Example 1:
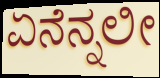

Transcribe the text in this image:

ಏನೆನ್ನಲೀ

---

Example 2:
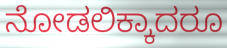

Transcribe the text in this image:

ನೋಡಲಿಕ್ಕಾದರೂ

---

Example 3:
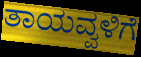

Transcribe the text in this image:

ತಾಯವ್ವಳಿಗೆ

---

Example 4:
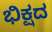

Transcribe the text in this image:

ಭಿಕ್ಷದ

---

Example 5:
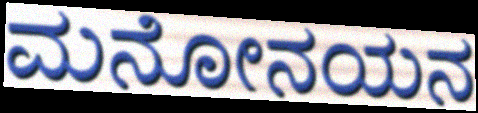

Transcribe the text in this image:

ಮನೋನಯನ